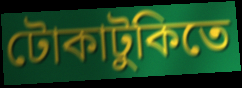
টোকাটুকিতে